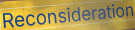
Reconsideration